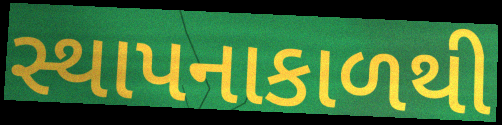
સ્થાપનાકાળથી